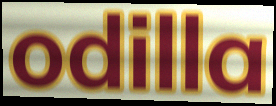
odilla